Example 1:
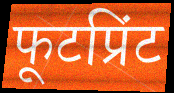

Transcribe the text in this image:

फूटप्रिंट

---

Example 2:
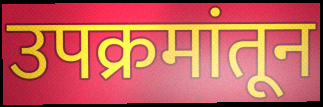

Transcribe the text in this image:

उपक्रमांतून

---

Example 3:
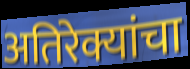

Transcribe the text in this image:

अतिरेक्यांचा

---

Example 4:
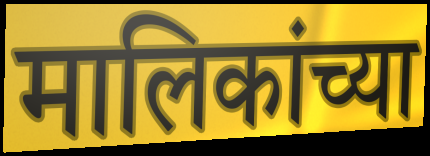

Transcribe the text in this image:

मालिकांच्या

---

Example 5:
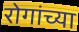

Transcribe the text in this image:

रोगांच्या